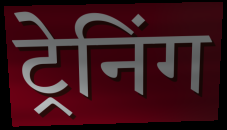
ट्रेनिंग